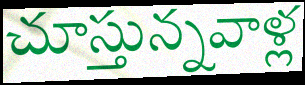
చూస్తున్నవాళ్ల